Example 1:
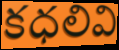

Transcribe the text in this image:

కధలివి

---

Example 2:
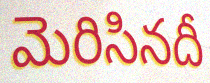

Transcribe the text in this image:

మెరిసినదీ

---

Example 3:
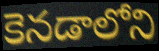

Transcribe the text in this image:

కెనడాలోని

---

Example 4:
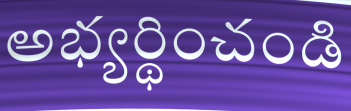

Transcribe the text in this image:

అభ్యర్థించండి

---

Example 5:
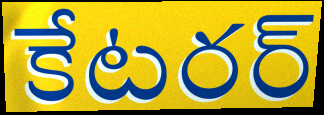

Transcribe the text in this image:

కేటరర్